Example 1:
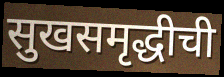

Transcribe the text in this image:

सुखसमृद्धीची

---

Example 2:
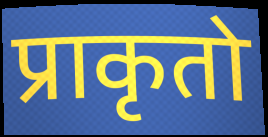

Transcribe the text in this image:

प्राकृतो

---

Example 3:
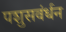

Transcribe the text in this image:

पशुसवंर्धन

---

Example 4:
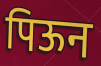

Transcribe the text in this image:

पिऊन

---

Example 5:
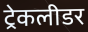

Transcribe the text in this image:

ट्रेकलीडर